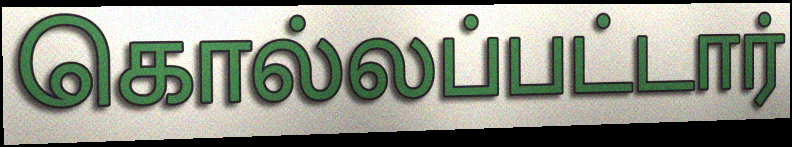
கொல்லப்பட்டார்